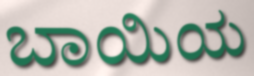
ಬಾಯಿಯ